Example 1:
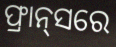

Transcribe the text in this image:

ଫ୍ରାନ୍‌ସରେ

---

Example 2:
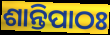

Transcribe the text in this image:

ଶାନ୍ତିପାଠଃ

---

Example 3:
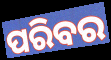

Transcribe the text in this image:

ପରିବର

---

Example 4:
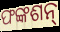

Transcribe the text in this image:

ଫଙ୍କଶନ୍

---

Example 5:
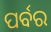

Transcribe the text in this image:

ପର୍ବର